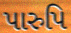
પારુપિ